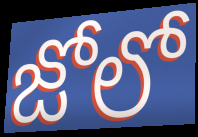
జోలో